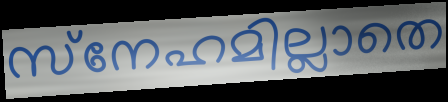
സ്‌നേഹമില്ലാതെ